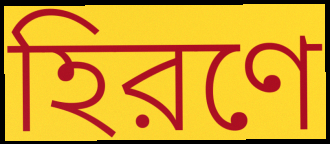
হিরণে